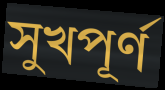
সুখপূর্ণ